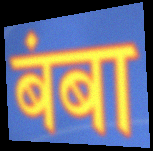
बंबा